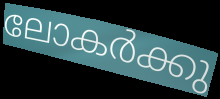
ലോകർക്കു